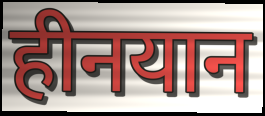
हीनयान